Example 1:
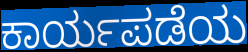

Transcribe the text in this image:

ಕಾರ್ಯಪಡೆಯ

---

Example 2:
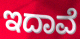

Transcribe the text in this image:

ಇದಾವೆ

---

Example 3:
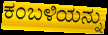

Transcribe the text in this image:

ಕಂಬಳಿಯನ್ನು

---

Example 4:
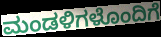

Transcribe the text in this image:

ಮಂಡಳಿಗಳೊಂದಿಗೆ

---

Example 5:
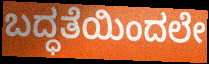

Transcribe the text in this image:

ಬದ್ಧತೆಯಿಂದಲೇ